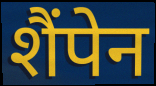
शैंपेन